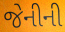
જેનીની